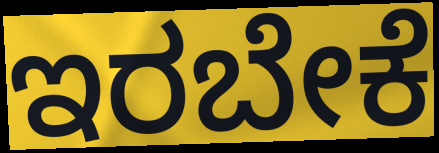
ಇರಬೇಕೆ